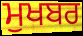
ਮੁਖਬਰ